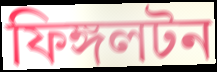
ফিঙ্গলটন